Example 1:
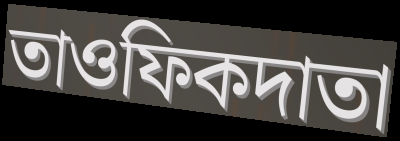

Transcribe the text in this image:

তাওফিকদাতা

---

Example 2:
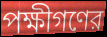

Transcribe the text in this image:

পক্ষীগণের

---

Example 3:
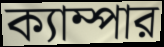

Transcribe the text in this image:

ক্যাম্পার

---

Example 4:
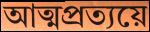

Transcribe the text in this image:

আত্মপ্রত্যয়ে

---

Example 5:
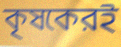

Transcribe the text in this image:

কৃষকেরই